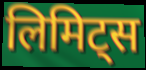
लिमिट्स